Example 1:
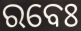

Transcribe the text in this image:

ରବେଃ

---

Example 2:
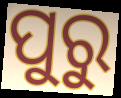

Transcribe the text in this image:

ପୁରୁ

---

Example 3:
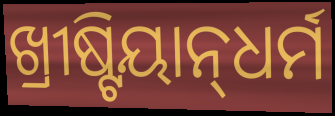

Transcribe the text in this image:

ଖ୍ରୀଷ୍ଟିୟାନ୍‌ଧର୍ମ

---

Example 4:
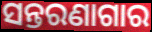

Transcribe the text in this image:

ସନ୍ତରଣାଗାର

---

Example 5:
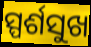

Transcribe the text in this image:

ସ୍ପର୍ଶସୁଖ